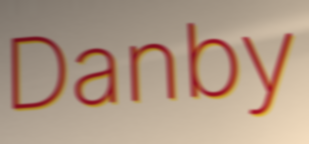
Danby